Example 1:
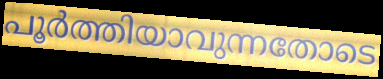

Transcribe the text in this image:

പൂർത്തിയാവുന്നതോടെ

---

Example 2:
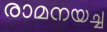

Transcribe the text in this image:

രാമനയച്ച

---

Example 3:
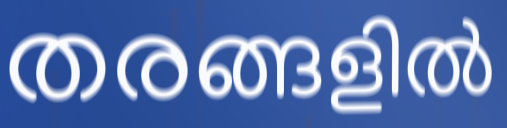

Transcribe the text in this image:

തരങ്ങളിൽ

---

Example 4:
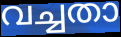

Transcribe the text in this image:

വച്ചതാ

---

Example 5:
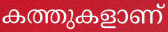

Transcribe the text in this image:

കത്തുകളാണ്